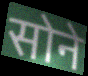
सोने